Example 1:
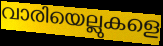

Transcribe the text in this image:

വാരിയെല്ലുകളെ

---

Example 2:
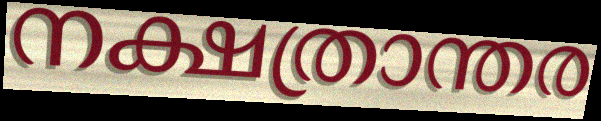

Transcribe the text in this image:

നക്ഷത്രാന്തര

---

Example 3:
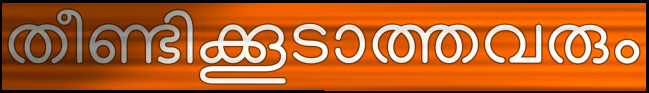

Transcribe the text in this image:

തീണ്ടിക്കൂടാത്തവരും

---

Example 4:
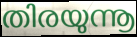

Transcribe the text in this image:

തിരയുന്നൂ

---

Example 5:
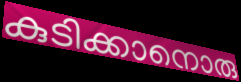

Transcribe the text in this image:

കുടിക്കാനൊരു